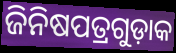
ଜିନିଷପତ୍ରଗୁଡ଼ାକ